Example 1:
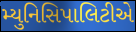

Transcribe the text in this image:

મ્યુનિસિપાલિટીએ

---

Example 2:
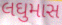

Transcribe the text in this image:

લઘુમાસ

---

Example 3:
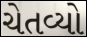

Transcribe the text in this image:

ચેતવ્યો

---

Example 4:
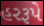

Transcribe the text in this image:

હરરૂપે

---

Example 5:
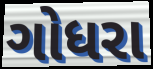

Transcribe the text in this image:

ગોધરા